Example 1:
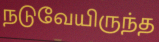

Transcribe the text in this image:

நடுவேயிருந்த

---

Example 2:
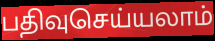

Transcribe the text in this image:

பதிவுசெய்யலாம்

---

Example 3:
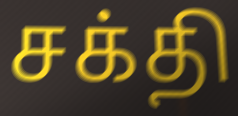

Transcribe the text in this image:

சக்தி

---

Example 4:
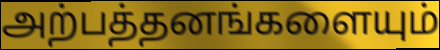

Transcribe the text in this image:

அற்பத்தனங்களையும்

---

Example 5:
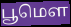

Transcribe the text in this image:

பூமௌ